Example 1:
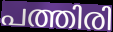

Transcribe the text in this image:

പത്തിരി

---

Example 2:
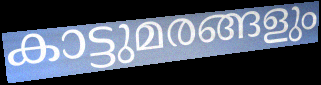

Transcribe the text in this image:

കാട്ടുമരങ്ങളും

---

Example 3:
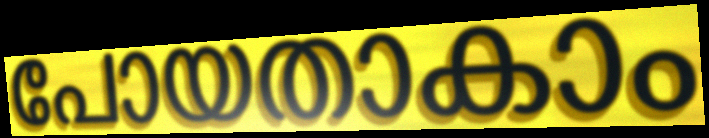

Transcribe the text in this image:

പോയതാകാം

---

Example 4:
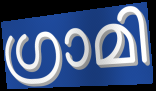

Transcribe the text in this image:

ഗ്രാമി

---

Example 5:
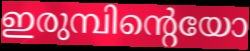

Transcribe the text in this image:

ഇരുമ്പിന്റെയോ